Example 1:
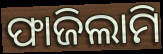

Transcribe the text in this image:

ଫାଜିଲାମି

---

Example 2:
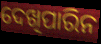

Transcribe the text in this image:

ଦେଖିପାରିନ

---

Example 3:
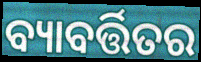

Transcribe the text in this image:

ବ୍ୟାବର୍ତ୍ତିତର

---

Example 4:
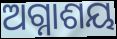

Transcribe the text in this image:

ଅଗ୍ନାଶୟ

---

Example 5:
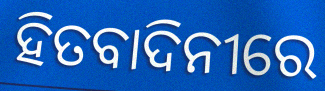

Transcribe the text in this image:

ହିତବାଦିନୀରେ